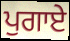
ਪੁਗਾਏ